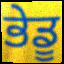
ਭੇਡੂ